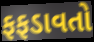
ફફડાવતો